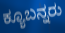
ಕ್ಯೂಬನ್ನರು